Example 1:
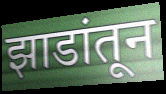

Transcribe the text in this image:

झाडांतून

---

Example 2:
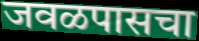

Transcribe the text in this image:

जवळपासचा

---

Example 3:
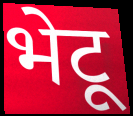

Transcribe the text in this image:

भेटू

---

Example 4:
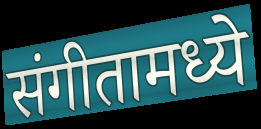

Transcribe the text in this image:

संगीतामध्ये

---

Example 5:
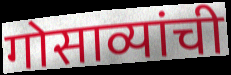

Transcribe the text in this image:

गोसाव्यांची